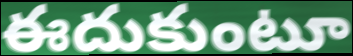
ఈదుకుంటూ